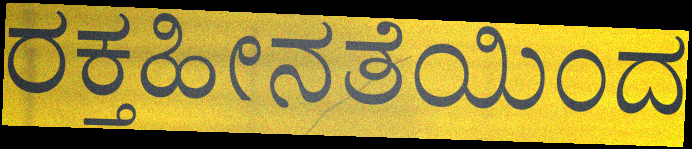
ರಕ್ತಹೀನತೆಯಿಂದ